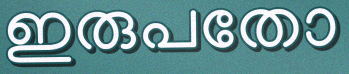
ഇരുപതോ